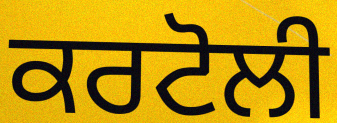
ਕਰਟੋਲੀ